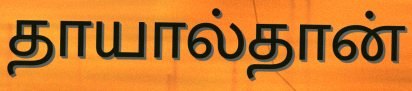
தாயால்தான்